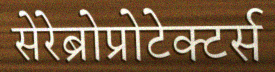
सेरेब्रोप्रोटेक्टर्स